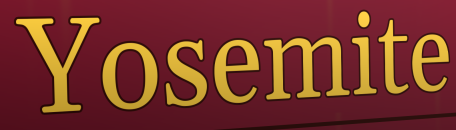
Yosemite